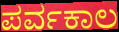
ಪರ್ವಕಾಲ